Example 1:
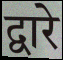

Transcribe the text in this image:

द्वारे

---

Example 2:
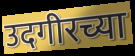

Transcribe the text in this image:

उदगीरच्या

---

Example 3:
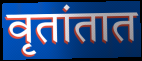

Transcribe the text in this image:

वृतांतात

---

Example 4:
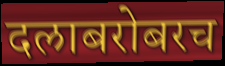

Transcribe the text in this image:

दलाबरोबरच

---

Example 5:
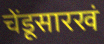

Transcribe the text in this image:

चेंडूसारखं